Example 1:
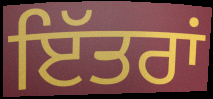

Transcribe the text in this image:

ਇੱਤਰਾਂ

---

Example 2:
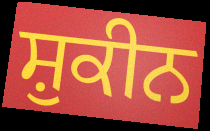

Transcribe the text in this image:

ਸ਼ੁਕੀਨ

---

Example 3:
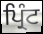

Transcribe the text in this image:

ਪ੍ਰਿੰਟ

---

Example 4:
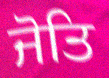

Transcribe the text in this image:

ਜੋਤਿ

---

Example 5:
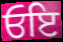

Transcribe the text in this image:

ਓਇ